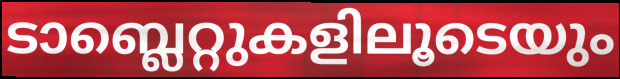
ടാബ്ലെറ്റുകളിലൂടെയും